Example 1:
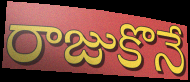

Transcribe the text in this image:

రాజుకొనే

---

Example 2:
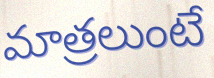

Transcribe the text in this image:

మాత్రలుంటే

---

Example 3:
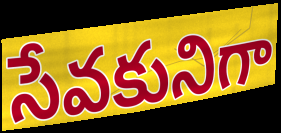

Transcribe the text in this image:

సేవకునిగా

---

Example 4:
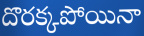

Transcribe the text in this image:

దొరక్కపోయినా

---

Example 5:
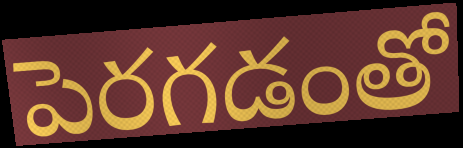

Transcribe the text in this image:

పెరగడంతో